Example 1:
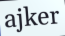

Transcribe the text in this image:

ajker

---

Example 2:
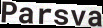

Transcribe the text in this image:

Parsva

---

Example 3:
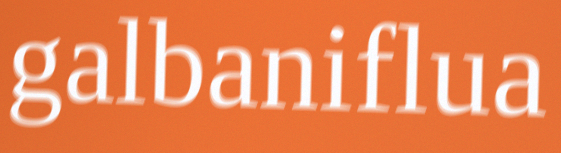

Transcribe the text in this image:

galbaniflua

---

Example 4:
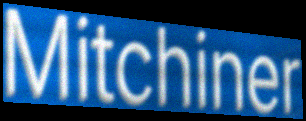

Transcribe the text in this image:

Mitchiner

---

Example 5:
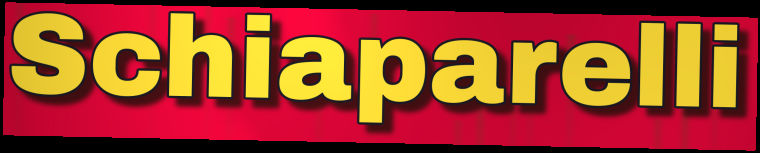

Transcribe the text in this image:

Schiaparelli